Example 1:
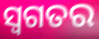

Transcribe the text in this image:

ସ୍ୱଗତର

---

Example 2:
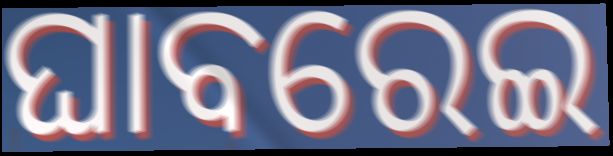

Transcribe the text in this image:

ଘାବରେଇ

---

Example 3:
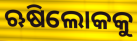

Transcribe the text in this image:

ଋଷିଲୋକକୁ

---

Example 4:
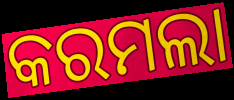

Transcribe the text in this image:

କରମଲା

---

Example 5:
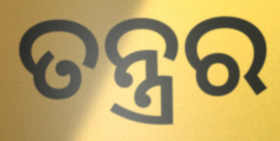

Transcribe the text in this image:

ତନ୍ତ୍ରର